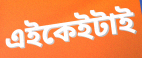
এইকেইটাই